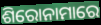
ଶିରୋନାମାରେ